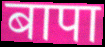
बापा